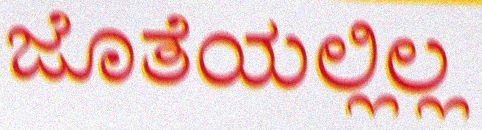
ಜೊತೆಯಲ್ಲಿಲ್ಲ